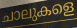
ചാലുകളെ